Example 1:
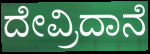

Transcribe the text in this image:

ದೇವ್ರಿದಾನೆ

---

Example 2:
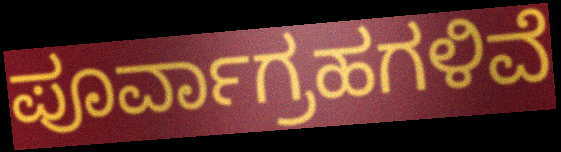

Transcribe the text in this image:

ಪೂರ್ವಾಗ್ರಹಗಳಿವೆ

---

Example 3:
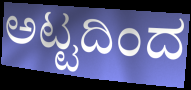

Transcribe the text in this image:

ಅಟ್ಟದಿಂದ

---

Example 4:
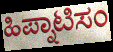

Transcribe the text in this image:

ಹಿಪ್ನಾಟಿಸಂ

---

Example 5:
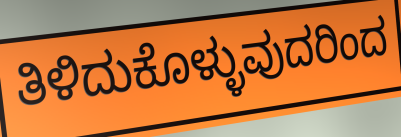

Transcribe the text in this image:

ತಿಳಿದುಕೊಳ್ಳುವುದರಿಂದ